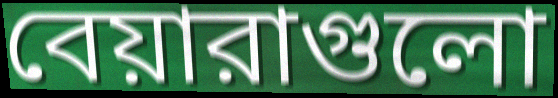
বেয়ারাগুলো